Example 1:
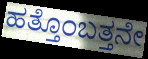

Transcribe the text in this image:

ಹತ್ತೊಂಬತ್ತನೇ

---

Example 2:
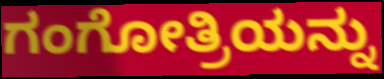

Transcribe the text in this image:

ಗಂಗೋತ್ರಿಯನ್ನು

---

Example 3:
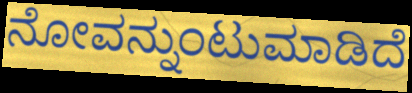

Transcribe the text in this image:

ನೋವನ್ನುಂಟುಮಾಡಿದೆ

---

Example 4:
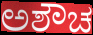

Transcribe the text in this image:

ಅಶೌಚ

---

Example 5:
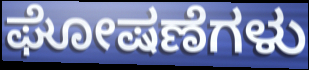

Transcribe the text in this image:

ಘೋಷಣೆಗಳು